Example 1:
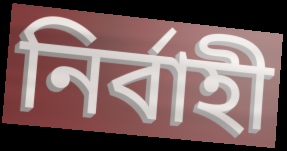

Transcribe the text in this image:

নির্বাহী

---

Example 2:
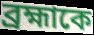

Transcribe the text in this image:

ব্রহ্মাকে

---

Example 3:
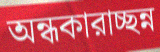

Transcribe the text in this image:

অন্ধকারাচ্ছন্ন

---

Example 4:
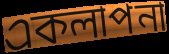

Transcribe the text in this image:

একলাপনা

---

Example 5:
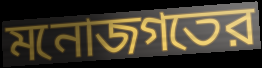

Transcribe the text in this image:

মনোজগতের